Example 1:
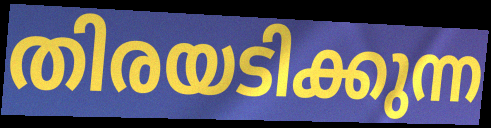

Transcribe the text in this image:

തിരയടിക്കുന്ന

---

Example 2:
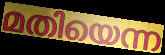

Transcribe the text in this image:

മതിയെന്ന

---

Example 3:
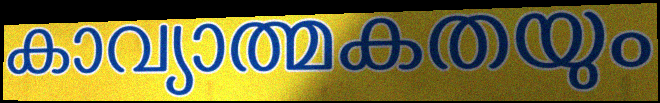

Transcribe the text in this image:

കാവ്യാത്മകതയും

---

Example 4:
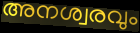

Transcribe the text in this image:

അനശ്വരവും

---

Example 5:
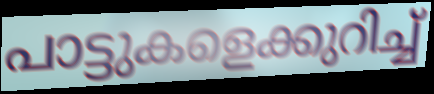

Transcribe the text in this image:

പാട്ടുകളെക്കുറിച്ച്